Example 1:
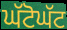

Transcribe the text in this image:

ਘੱਟੋਘੱਟ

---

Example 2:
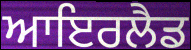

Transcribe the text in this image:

ਆਇਰਲੈਡ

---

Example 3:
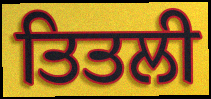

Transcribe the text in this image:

ਤਿਤਲੀ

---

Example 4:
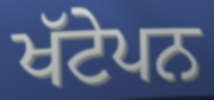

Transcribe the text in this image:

ਖੱਟੇਪਨ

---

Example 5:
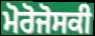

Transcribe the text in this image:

ਮੋਰੋਜੋਸਕੀ